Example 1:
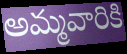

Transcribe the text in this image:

అమ్మవారికి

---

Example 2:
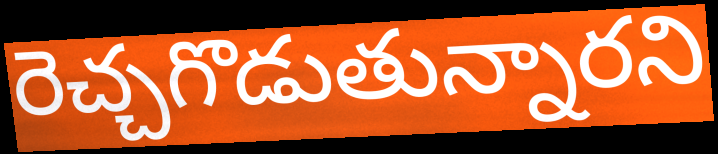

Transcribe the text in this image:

రెచ్చగొడుతున్నారని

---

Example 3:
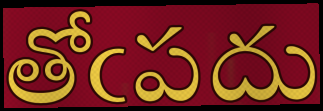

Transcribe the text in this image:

తోఁపదు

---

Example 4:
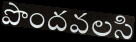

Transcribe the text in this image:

పొందవలసి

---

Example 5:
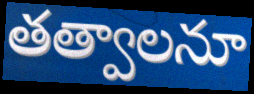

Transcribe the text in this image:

తత్వాలనూ